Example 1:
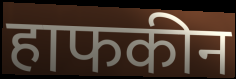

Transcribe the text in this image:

हाफकीन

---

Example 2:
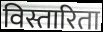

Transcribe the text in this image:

विस्तारिता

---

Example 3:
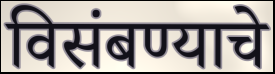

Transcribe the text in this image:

विसंबण्याचे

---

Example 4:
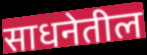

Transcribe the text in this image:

साधनेतील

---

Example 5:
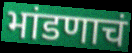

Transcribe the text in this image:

भांडणाचं